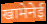
खामेनेई